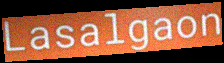
Lasalgaon